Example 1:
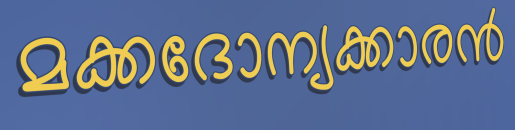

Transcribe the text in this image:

മക്കദോന്യക്കാരൻ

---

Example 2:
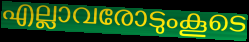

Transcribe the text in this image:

എല്ലാവരോടുംകൂടെ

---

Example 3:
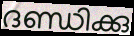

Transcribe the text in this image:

ദണ്ഡിക്കു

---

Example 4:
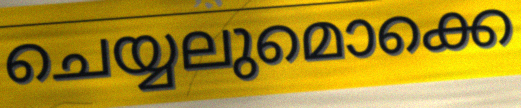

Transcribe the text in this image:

ചെയ്യലുമൊക്കെ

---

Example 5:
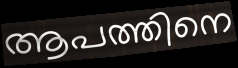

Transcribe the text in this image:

ആപത്തിനെ